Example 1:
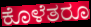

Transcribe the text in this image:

ಕೊಳೆತರೂ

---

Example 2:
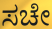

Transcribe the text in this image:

ಸಚೇ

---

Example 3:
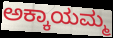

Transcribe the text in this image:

ಅಕ್ಕಾಯಮ್ಮ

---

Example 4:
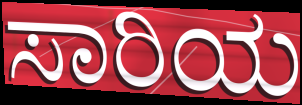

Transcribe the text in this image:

ಸಾರಿಯ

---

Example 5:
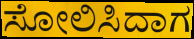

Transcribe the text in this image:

ಸೋಲಿಸಿದಾಗ